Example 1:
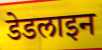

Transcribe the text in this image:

डेडलाइन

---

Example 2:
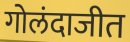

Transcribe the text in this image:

गोलंदाजीत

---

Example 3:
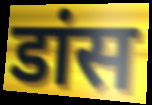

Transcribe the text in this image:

डांस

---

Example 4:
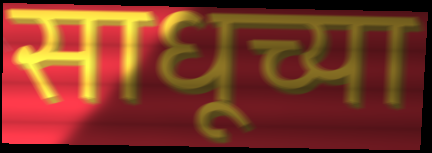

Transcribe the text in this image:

साधूच्या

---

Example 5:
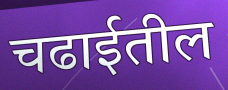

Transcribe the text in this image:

चढाईतील